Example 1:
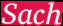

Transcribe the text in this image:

Sach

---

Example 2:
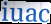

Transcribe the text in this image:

iuac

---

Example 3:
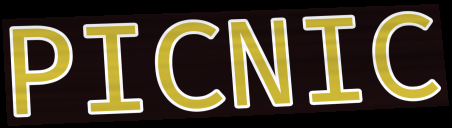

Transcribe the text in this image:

PICNIC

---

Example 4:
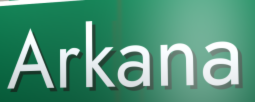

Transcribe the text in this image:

Arkana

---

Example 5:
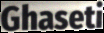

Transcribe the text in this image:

Ghaseti